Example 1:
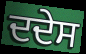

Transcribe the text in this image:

ਦਦੇਸ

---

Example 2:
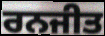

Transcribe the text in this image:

ਰਨਜੀਤ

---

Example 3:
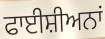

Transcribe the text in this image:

ਫਾਈਸ਼ੀਅਨਾਂ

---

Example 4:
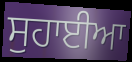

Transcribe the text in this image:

ਸੁਹਾਈਆ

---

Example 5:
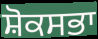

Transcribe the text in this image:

ਸ਼ੋਕਸਭਾ